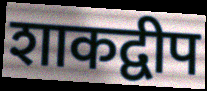
शाकद्वीप